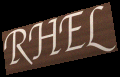
RHEL